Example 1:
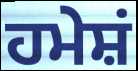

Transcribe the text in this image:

ਹਮੇਸ਼ਂ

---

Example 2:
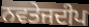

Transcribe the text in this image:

ਨਵਤੇਜਦੀਪ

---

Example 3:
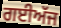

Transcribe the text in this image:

ਗਈਅੱਜ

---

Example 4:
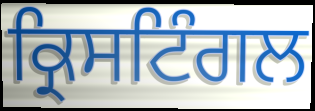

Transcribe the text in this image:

ਕ੍ਰਿਸਟਿੰਗਲ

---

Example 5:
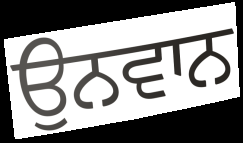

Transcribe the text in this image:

ਉਨਵਾਨ